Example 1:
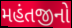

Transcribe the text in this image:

મહંતજીનો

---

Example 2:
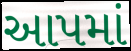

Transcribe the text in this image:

આપમાં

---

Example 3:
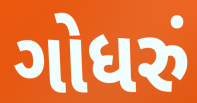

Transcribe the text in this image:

ગોધરું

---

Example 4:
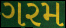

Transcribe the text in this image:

ગરમ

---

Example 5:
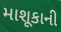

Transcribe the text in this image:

માશૂકાની